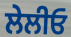
ਲੇਲੀਓ